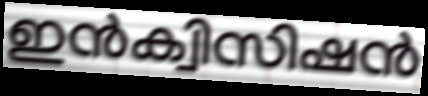
ഇൻക്വിസിഷൻ